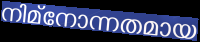
നിമ്നോന്നതമായ